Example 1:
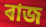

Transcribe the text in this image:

ৰাজ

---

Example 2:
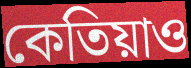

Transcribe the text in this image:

কেতিয়াও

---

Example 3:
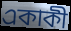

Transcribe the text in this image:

একাকী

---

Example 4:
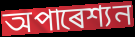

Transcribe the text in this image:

অপাৰেশ্যন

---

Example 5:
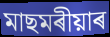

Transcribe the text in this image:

মাছমৰীয়াৰ